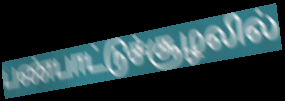
பண்பாட்டுச்சூழலில்